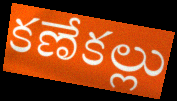
కణేకల్లు